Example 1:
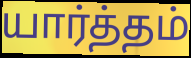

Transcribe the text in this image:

யார்த்தம்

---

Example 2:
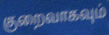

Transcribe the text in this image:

குறைவாகவும்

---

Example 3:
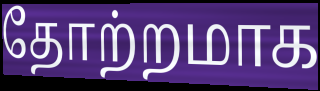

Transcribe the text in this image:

தோற்றமாக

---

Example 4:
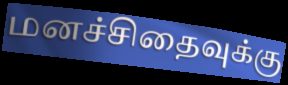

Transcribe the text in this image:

மனச்சிதைவுக்கு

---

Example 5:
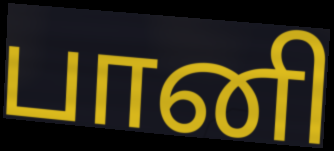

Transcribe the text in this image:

பானி